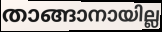
താങ്ങാനായില്ല